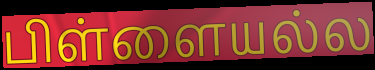
பிள்ளையல்ல